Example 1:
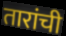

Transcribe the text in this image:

तारांची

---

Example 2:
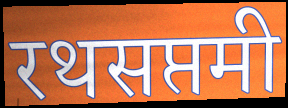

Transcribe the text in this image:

रथसप्तमी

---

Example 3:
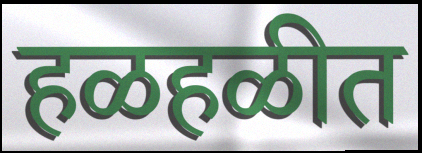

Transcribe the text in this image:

हळहळीत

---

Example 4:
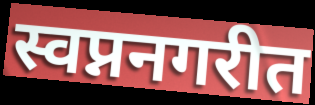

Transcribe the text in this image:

स्वप्ननगरीत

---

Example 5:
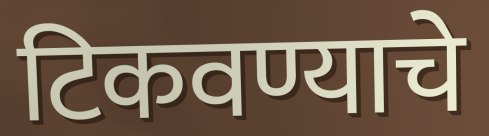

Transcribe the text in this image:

टिकवण्याचे